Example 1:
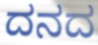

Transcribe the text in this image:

ದನದ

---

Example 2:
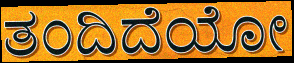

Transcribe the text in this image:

ತಂದಿದೆಯೋ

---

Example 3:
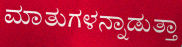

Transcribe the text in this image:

ಮಾತುಗಳನ್ನಾಡುತ್ತಾ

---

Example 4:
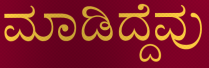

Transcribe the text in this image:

ಮಾಡಿದ್ದೆವು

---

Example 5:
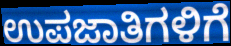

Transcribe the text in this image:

ಉಪಜಾತಿಗಳಿಗೆ